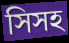
সিসহ